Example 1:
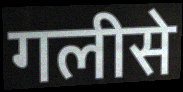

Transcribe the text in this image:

गलीसे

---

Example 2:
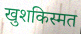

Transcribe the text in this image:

खुशकिस्मत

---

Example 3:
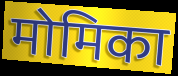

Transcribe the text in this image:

मोमिका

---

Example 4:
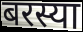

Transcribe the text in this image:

बरस्या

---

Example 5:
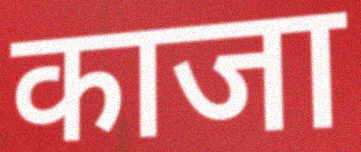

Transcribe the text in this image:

काजा